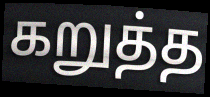
கறுத்த